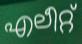
എലീറ്റ്